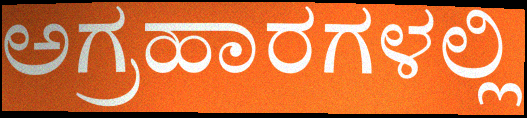
ಅಗ್ರಹಾರಗಳಲ್ಲಿ